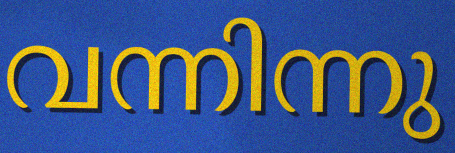
വന്നിന്നു